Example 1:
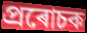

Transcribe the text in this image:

প্ৰৰোচক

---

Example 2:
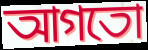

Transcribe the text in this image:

আগতো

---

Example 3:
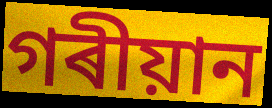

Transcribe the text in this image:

গৰীয়ান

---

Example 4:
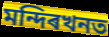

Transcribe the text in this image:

মন্দিৰখনত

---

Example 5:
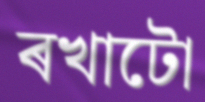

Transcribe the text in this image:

ৰখাটো